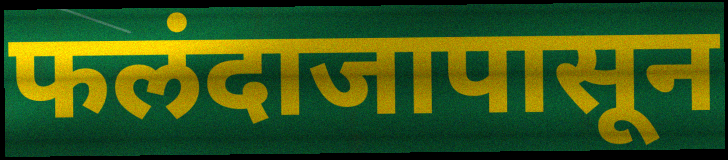
फलंदाजापासून